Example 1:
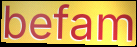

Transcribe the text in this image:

befam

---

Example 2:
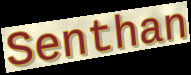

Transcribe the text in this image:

Senthan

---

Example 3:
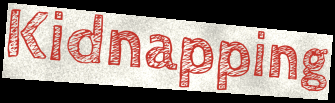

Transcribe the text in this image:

Kidnapping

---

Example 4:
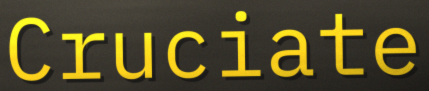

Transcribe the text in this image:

Cruciate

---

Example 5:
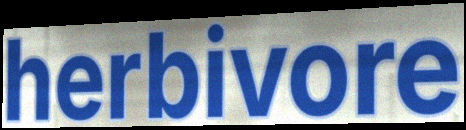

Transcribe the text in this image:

herbivore